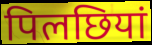
पिलछियां